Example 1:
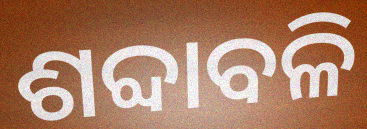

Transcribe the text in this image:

ଶବ୍ଦାବଳି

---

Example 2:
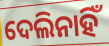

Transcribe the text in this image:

ଦେଲିନାହିଁ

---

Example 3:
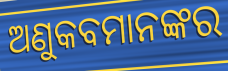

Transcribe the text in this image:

ଅଣୁକବମାନଙ୍କର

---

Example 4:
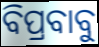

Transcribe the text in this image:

ବିପ୍ରବାବୁ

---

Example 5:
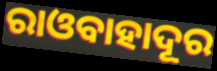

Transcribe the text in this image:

ରାଓବାହାଦୂର